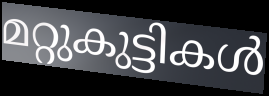
മറ്റുകുട്ടികൾ